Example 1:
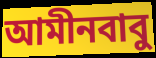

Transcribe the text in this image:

আমীনবাবু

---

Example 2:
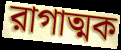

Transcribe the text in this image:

রাগাত্মক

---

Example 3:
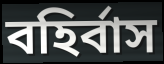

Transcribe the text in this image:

বহির্বাস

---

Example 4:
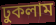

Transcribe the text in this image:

ঢুকলাম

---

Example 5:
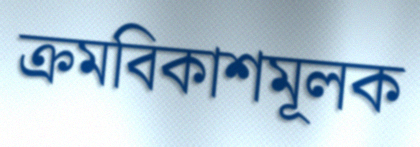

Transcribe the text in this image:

ক্রমবিকাশমূলক